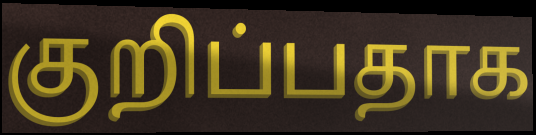
குறிப்பதாக